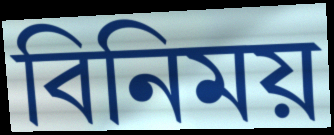
বিনিময়